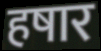
हषार